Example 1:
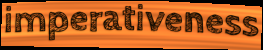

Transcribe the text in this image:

imperativeness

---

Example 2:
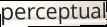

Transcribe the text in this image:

perceptual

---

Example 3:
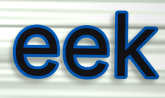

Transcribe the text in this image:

eek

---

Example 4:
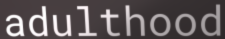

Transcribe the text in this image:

adulthood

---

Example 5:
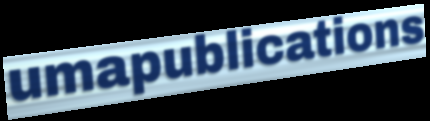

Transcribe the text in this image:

umapublications